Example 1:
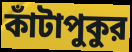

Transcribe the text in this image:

কাঁটাপুকুর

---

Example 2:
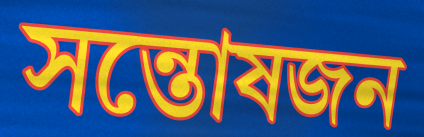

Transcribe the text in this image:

সন্তোষজন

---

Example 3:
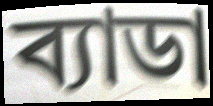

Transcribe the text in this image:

ব্যাডা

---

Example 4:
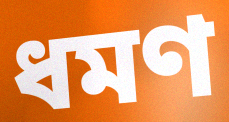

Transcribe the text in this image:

ধমণ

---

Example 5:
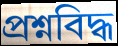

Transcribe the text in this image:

প্রশ্নবিদ্ধ